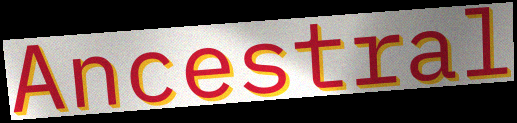
Ancestral